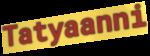
Tatyaanni